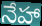
నేహా